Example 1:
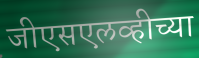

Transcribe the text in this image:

जीएसएलव्हीच्या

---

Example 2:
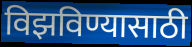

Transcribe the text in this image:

विझविण्यासाठी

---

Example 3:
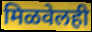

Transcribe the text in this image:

मिळवेलही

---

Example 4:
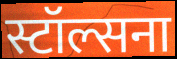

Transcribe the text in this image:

स्टॉल्सना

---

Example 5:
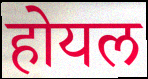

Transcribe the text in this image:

होयल